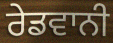
ਰੇਡਵਾਨੀ